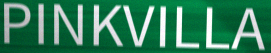
PINKVILLA